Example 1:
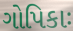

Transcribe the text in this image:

ગોપિકાઃ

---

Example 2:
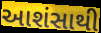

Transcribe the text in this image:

આશંસાથી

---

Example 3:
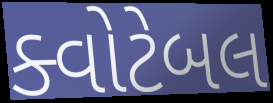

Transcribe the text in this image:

ક્વોટેબલ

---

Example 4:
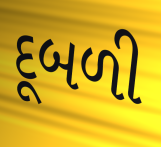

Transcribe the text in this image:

દૂબળી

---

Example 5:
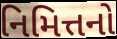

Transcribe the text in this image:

નિમિત્તનો